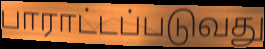
பாராட்டப்படுவது